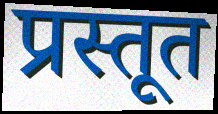
प्रस्तूत